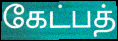
கேட்பத்